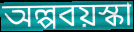
অল্পবয়স্কা